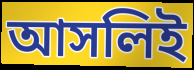
আসলিই